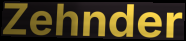
Zehnder